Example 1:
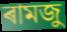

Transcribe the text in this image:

ৰামজু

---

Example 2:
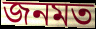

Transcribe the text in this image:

জনমত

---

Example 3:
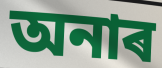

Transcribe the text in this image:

অনাৰ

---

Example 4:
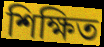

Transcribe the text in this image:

শিক্ষিত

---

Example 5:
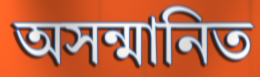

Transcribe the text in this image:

অসন্মানিত